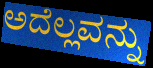
ಅದೆಲ್ಲವನ್ನು